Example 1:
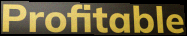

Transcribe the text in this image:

Profitable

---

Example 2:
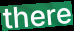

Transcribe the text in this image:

there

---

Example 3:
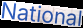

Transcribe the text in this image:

National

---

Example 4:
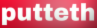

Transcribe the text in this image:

putteth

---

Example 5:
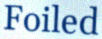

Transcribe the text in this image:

Foiled